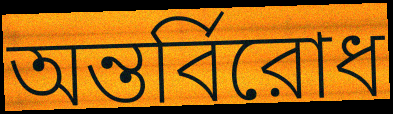
অন্তর্বিরোধ